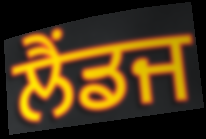
ਲੈਂਡਜ